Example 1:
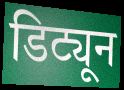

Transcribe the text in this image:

डिट्यून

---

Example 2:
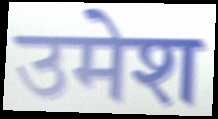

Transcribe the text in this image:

उमेश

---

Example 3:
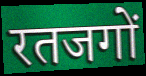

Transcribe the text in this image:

रतजगों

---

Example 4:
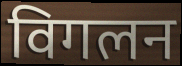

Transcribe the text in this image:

विगलन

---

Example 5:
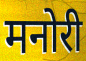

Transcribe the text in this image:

मनोरी